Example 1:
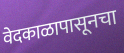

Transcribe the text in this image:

वेदकाळापासूनचा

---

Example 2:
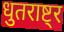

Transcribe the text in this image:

धुतराष्ट्र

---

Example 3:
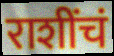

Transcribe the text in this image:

राशींचं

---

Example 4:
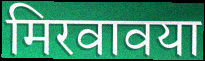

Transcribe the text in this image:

मिरवावया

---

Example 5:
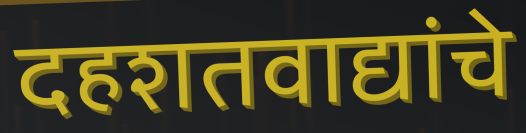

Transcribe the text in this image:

दहशतवाद्यांचे